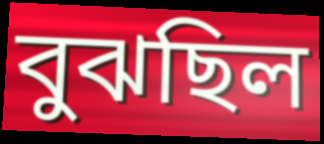
বুঝছিল